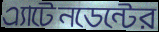
এ্যাটেনডেন্টের